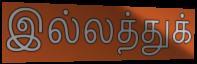
இல்லத்துக்